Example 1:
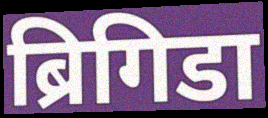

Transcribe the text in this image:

ब्रिगिडा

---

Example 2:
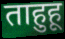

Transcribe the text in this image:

ताहुहू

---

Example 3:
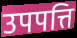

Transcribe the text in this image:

उपपत्ति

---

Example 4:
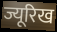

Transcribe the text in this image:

ज्यूरिख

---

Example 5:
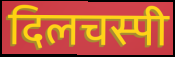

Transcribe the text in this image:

दिलचस्पी